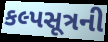
કલ્પસૂત્રની